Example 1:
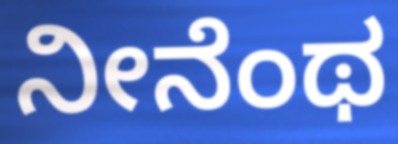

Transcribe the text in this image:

ನೀನೆಂಥ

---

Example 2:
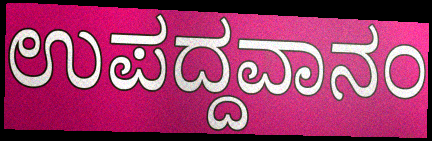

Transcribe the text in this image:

ಉಪದ್ದವಾನಂ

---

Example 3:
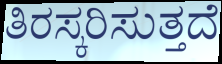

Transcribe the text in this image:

ತಿರಸ್ಕರಿಸುತ್ತದೆ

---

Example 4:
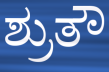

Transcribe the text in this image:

ಶ್ರುತೌ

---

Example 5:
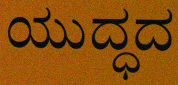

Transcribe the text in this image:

ಯುದ್ಧದ